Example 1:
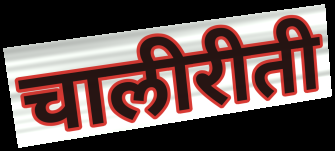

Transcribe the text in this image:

चालीरीती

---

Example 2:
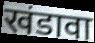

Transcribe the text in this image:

खंडावा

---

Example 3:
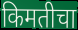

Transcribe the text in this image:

किमतीचा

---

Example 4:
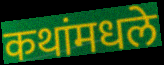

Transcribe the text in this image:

कथांमधले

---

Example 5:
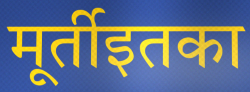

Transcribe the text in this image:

मूर्तीइतका